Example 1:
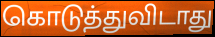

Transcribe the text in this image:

கொடுத்துவிடாது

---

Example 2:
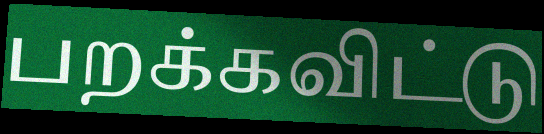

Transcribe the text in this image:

பறக்கவிட்டு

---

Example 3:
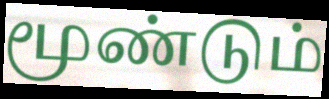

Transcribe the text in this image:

மூண்டும்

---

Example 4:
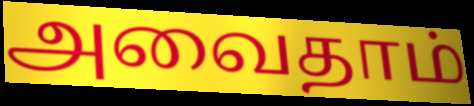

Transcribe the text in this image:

அவைதாம்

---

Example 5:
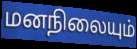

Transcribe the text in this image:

மனநிலையும்